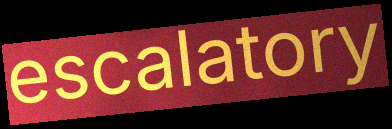
escalatory